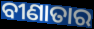
ବୀଣାତାର